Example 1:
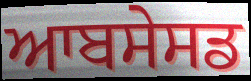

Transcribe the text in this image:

ਆਬਸੇਸਡ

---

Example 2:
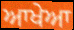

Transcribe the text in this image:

ਆਖੇਆ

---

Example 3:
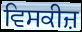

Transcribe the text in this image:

ਵਿਸਕੀਜ਼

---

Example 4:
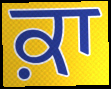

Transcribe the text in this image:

ਕ਼ਾ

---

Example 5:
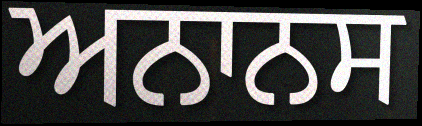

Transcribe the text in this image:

ਅਨਾਨਸ